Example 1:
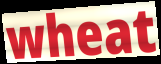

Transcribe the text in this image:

wheat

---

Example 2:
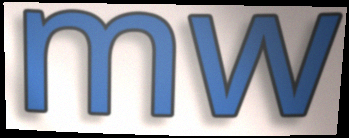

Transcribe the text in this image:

mw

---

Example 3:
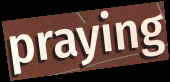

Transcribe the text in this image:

praying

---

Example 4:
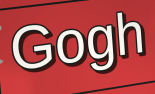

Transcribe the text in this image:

Gogh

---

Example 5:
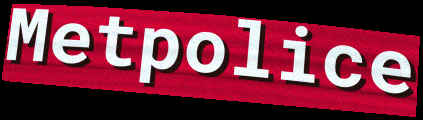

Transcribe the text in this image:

Metpolice